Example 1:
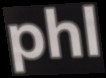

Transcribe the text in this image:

phl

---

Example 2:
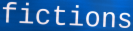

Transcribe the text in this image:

fictions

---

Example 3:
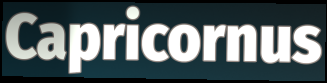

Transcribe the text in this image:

Capricornus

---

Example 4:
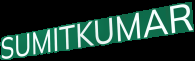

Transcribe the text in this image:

SUMITKUMAR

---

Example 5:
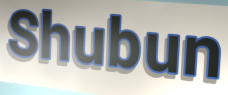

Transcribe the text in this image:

Shubun